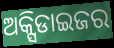
ଅକ୍ସିଡାଇଜର